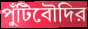
পুঁটিবৌদির